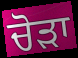
ਚੋੜਾ